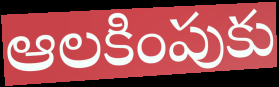
ఆలకింపుకు